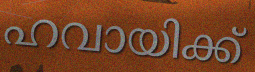
ഹവായിക്ക്